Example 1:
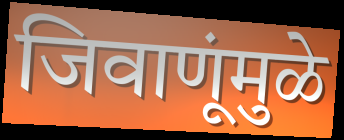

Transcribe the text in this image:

जिवाणूंमुळे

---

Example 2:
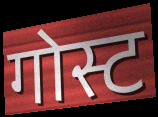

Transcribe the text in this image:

गोस्ट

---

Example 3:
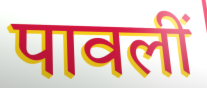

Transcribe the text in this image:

पावलीं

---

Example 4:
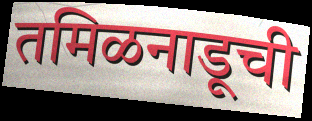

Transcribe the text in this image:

तमिळनाडूची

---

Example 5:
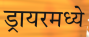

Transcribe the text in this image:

ड्रायरमध्ये